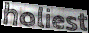
holiest